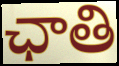
ఛాతి